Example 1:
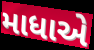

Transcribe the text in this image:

માધાએ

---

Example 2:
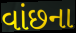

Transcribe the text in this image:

વાંછના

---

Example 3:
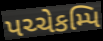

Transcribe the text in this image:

પચ્ચેકમ્પિ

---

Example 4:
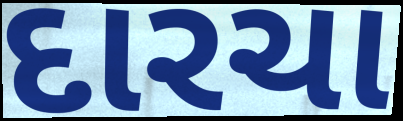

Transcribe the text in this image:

દારચા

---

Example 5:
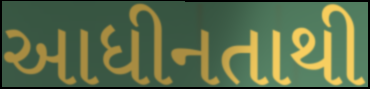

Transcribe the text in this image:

આધીનતાથી